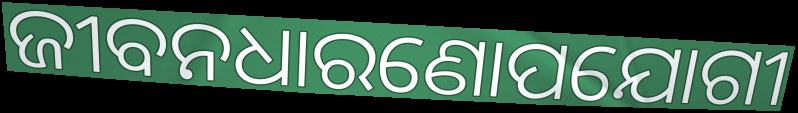
ଜୀବନଧାରଣୋପଯୋଗୀ